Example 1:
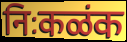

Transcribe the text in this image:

निःकळंक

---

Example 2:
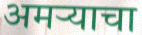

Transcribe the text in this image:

अमऱ्याचा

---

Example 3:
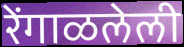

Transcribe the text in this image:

रेंगाळलेली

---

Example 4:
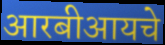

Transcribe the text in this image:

आरबीआयचे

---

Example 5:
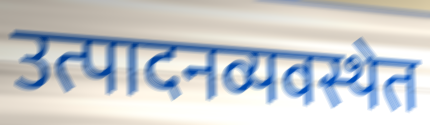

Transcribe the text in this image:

उत्पादनव्यवस्थेत